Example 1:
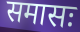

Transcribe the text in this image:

समासः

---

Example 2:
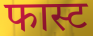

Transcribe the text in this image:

फास्ट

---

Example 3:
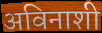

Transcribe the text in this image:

अविनाशी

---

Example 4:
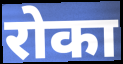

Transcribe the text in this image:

रोका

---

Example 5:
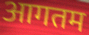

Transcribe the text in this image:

आगतम